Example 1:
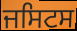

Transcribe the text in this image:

ਜਸਿਟਸ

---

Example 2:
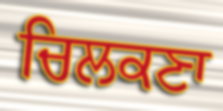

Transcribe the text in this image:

ਚਿਲਕਣਾ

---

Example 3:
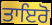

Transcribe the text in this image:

ਤਾਇਰੋ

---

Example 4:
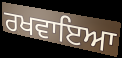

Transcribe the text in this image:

ਰਖਵਾਇਆ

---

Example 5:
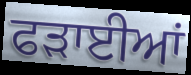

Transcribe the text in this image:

ਫੜਾਈਆਂ